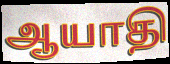
ஆயாதி